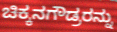
ಚಿಕ್ಕನಗೌಡ್ರರನ್ನು